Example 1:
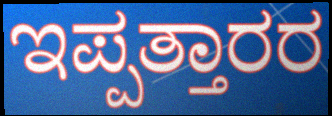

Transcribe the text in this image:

ಇಪ್ಪತ್ತಾರರ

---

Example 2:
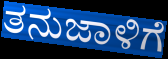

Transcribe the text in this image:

ತನುಜಾಳಿಗೆ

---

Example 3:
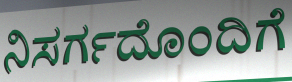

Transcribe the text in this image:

ನಿಸರ್ಗದೊಂದಿಗೆ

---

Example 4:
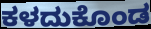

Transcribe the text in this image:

ಕಳದುಕೊಂಡ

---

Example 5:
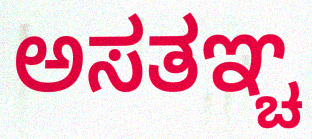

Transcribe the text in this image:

ಅಸತಞ್ಚ